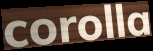
corolla